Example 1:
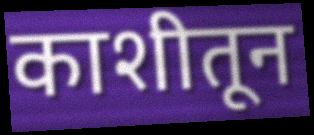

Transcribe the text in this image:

काशीतून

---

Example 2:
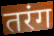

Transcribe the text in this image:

तरंग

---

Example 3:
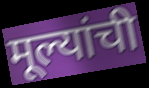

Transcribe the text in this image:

मूल्यांची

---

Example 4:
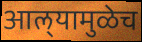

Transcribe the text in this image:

आल्यामुळेच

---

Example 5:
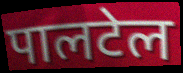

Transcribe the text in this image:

पालटेल